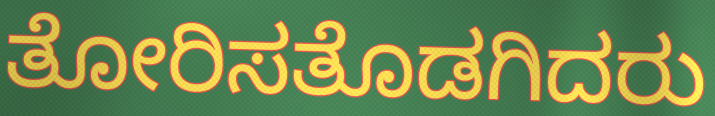
ತೋರಿಸತೊಡಗಿದರು